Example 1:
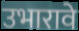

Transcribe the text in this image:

उभारावे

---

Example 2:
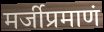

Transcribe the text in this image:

मर्जीप्रमाणं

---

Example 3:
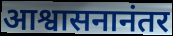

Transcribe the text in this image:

आश्वासनानंतर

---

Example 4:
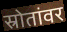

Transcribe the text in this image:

स्रोतांवर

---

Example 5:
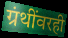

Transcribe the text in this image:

ग्रंथींवरही